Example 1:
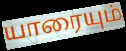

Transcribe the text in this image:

யாரையும்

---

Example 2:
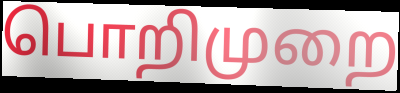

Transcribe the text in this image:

பொறிமுறை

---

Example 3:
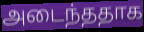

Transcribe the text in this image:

அடைந்ததாக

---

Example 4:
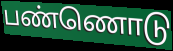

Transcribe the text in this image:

பண்ணொடு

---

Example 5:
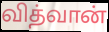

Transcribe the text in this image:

வித்வான்